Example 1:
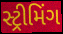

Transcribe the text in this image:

સ્ટ્રીમિંગ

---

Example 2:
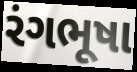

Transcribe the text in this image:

રંગભૂષા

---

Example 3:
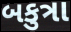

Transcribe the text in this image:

બકુત્રા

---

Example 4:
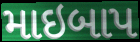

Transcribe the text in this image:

માઇબાપ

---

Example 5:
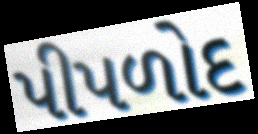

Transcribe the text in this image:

પીપળોદ